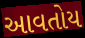
આવતોય